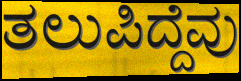
ತಲುಪಿದ್ದೆವು